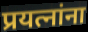
प्रयत्नांना